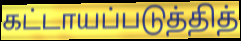
கட்டாயப்படுத்தித்